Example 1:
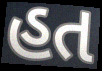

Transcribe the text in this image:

હત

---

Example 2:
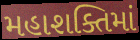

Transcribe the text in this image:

મહાશક્તિમાં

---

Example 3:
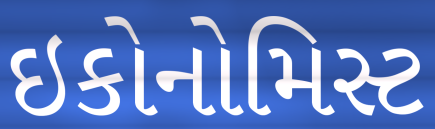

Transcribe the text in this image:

ઇકોનોમિસ્ટ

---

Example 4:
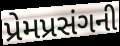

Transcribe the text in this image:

પ્રેમપ્રસંગની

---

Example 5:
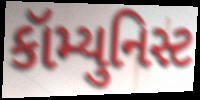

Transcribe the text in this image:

કૉમ્યુનિસ્ટ